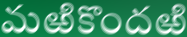
మఱికొందఱి